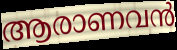
ആരാണവൻ